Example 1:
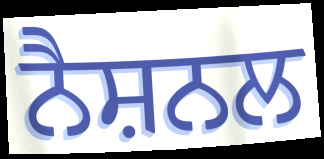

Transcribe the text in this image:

ਨੈਸ਼ਨਲ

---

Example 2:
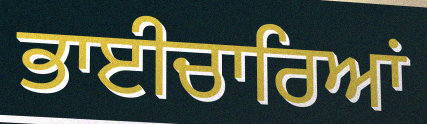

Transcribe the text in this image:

ਭਾਈਚਾਰਿਆਂ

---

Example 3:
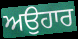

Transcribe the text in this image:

ਅਉਹਾਰ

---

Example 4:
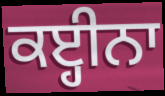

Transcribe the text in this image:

ਕੲ੍ਹੀਨਾ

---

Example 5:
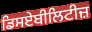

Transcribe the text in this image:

ਡਿਸਏਬੀਲਿਟੀਜ਼